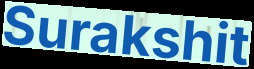
Surakshit